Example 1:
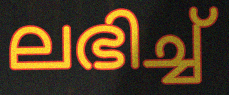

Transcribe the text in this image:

ലഭിച്ച്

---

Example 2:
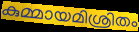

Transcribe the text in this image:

കുമ്മായമിശ്രിതം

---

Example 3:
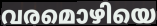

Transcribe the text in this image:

വരമൊഴിയെ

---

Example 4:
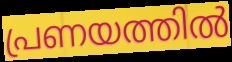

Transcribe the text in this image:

പ്രണയത്തിൽ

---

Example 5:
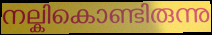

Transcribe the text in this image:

നല്കികൊണ്ടിരുന്നു